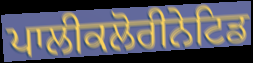
ਪਾਲੀਕਲੋਰੀਨੇਟਿਡ